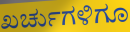
ಖರ್ಚುಗಳಿಗೂ